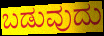
ಬಡುವುದು